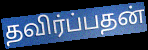
தவிர்ப்பதன்